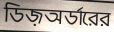
ডিজ়অর্ডারের